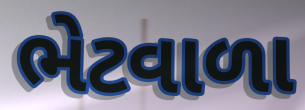
ભેટવાળા